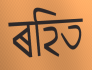
ৰহিত